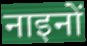
नाइनों